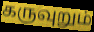
கருவுறும்